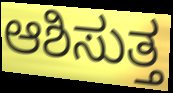
ಆಶಿಸುತ್ತ